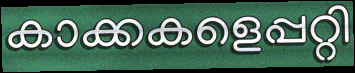
കാക്കകളെപ്പറ്റി